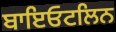
ਬਾਇਓਟਲਿਨ